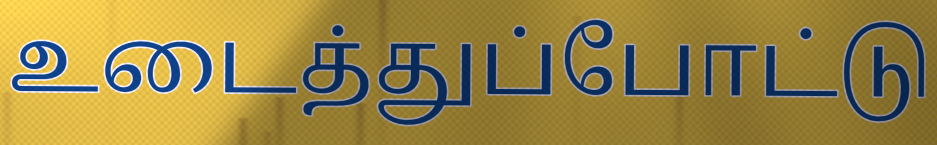
உடைத்துப்போட்டு